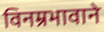
विनम्रभावाने